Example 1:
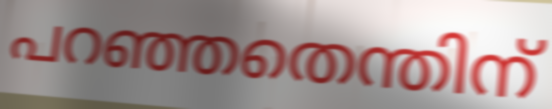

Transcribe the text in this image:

പറഞ്ഞതെന്തിന്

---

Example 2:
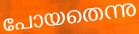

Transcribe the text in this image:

പോയതെന്നു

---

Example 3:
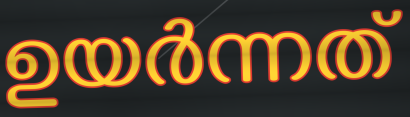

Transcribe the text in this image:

ഉയർന്നത്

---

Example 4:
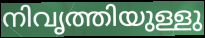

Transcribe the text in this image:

നിവൃത്തിയുള്ളു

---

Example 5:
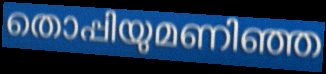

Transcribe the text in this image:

തൊപ്പിയുമണിഞ്ഞ